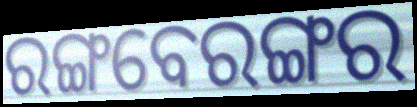
ରଙ୍ଗବେରଙ୍ଗର